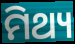
ମିଥ୍ୟ